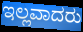
ಇಲ್ಲವಾದರು